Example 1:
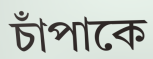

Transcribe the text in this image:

চাঁপাকে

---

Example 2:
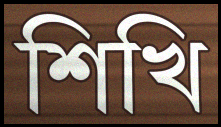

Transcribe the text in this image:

শিখি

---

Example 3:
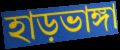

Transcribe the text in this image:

হাড়ভাঙ্গা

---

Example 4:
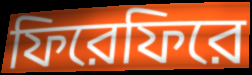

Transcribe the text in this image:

ফিরেফিরে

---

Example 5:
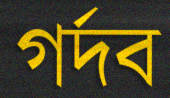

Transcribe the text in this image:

গর্দব